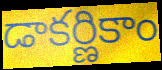
డాకర్ణికాం